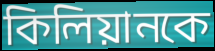
কিলিয়ানকে